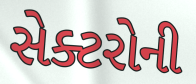
સેક્ટરોની